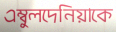
এম্বুলদেনিয়াকে